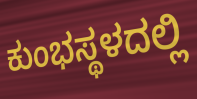
ಕುಂಭಸ್ಥಳದಲ್ಲಿ